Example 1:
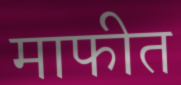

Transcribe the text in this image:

माफीत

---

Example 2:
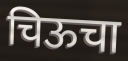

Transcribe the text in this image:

चिऊचा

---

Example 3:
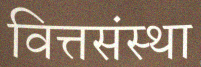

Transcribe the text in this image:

वित्तसंस्था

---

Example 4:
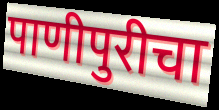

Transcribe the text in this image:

पाणीपुरीचा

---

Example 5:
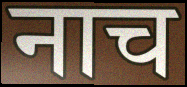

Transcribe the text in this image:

नाच